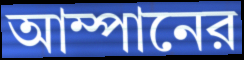
আম্পানের